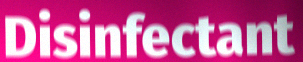
Disinfectant